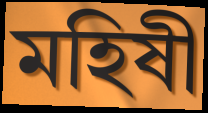
মহিষী